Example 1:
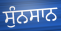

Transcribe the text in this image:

ਸੁੰਨਸਾਨ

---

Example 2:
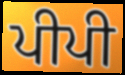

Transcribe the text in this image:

ਪੀਪੀ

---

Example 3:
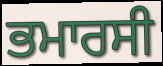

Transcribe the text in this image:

ਭਮਾਰਸੀ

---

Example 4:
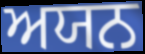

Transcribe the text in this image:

ਅਯਨ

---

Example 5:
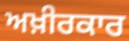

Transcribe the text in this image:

ਅਖ਼ੀਰਕਾਰ